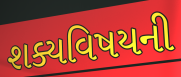
શક્યવિષયની